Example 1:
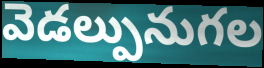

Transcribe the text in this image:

వెడల్పునుగల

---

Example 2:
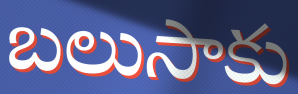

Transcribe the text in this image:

బలుసాకు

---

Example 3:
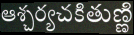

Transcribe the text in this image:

ఆశ్చర్యచకితుణ్ణి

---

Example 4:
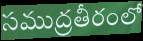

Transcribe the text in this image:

సముద్రతీరంలో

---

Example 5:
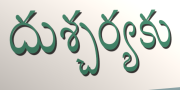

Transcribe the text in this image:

దుశ్చర్యకు